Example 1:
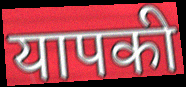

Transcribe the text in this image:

यापकी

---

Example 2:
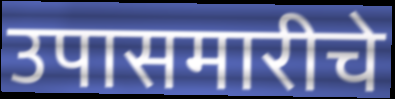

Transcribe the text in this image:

उपासमारीचे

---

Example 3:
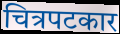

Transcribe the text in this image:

चित्रपटकार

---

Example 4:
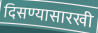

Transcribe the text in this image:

दिसण्यासारखी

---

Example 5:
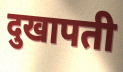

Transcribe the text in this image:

दुखापती